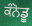
ਕੰਨੋਡੂ